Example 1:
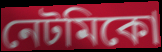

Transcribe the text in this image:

নেটমিকো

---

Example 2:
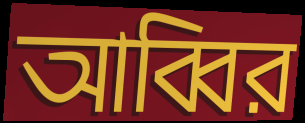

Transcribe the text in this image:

আব্বির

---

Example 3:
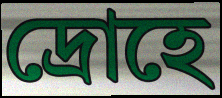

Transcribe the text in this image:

দ্রোহে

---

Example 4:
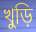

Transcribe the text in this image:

খুড়ি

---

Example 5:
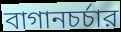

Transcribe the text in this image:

বাগানচর্চার